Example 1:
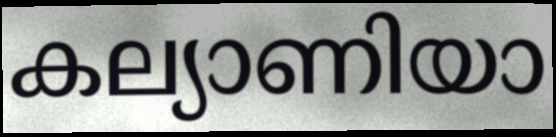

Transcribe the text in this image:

കല്യാണിയാ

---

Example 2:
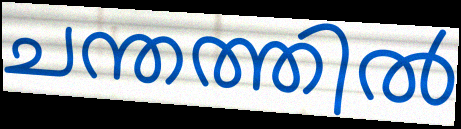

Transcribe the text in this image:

ചന്തത്തിൽ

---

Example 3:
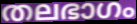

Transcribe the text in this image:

തലഭാഗം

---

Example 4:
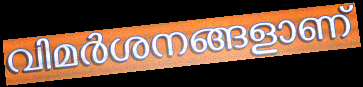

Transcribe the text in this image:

വിമർശനങ്ങളാണ്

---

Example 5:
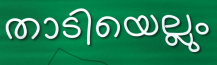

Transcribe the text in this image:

താടിയെല്ലും